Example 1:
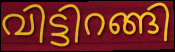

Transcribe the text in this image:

വിട്ടിറങ്ങി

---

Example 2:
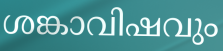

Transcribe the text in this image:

ശങ്കാവിഷവും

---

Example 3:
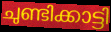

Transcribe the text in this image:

ചുണ്ടിക്കാട്ടി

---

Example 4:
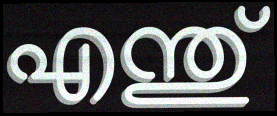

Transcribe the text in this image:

എന്തു്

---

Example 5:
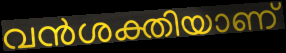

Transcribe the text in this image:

വൻശക്തിയാണ്